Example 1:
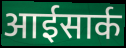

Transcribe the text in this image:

आईसार्क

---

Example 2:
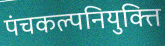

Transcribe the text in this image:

पंचकल्पनियुक्ति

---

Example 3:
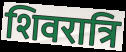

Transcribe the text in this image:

शिवरात्रि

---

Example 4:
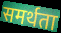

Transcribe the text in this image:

समर्थता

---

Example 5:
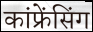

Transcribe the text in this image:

कांफ्रेंसिंग